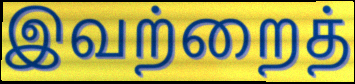
இவற்றைத்